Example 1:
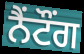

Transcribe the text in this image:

ਨੈਂਟੌਂਗ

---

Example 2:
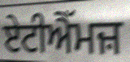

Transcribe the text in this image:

ਏਟੀਐੱਮਜ਼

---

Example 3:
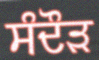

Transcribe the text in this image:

ਸੰਦੌੜ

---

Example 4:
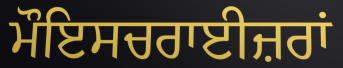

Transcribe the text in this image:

ਮੌਇਸਚਰਾਈਜ਼ਰਾਂ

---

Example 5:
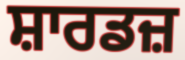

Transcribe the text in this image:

ਸ਼ਾਰਡਜ਼